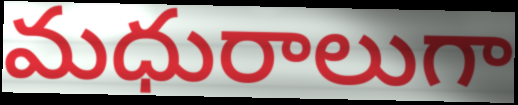
మధురాలుగా